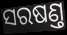
ସରଷଣ୍ତ